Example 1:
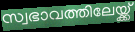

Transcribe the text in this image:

സ്വഭാവത്തിലേയ്ക്ക്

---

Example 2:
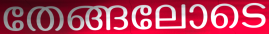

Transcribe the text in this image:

തേങ്ങലോടെ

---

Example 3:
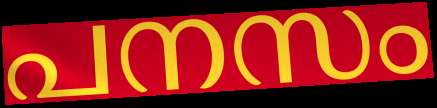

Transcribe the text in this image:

പനസം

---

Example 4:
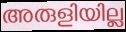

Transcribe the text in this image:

അരുളിയില്ല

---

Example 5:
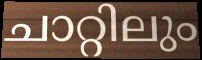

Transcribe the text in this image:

ചാറ്റിലും